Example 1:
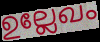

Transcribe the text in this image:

ഉല്ലേഖം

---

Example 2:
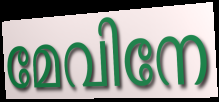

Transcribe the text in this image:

മേവിനേ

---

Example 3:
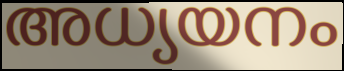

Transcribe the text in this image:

അധ്യയനം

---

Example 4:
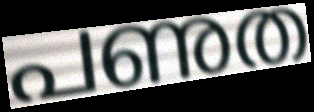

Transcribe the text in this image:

പണുത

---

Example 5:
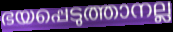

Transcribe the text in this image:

ഭയപ്പെടുത്താനല്ല